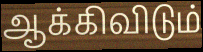
ஆக்கிவிடும்